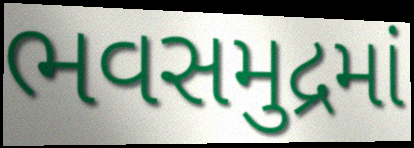
ભવસમુદ્રમાં